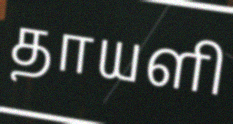
தாயளி